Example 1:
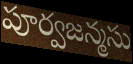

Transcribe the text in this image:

పూర్వజన్మసు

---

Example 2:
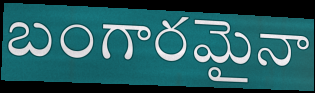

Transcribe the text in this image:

బంగారమైనా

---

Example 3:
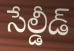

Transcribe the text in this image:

సేల్డీడ్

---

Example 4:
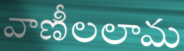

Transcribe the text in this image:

వాణీలలామ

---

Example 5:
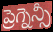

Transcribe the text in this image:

ప్రెగ్నెన్సీ